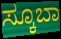
ಸ್ಕೂಬಾ